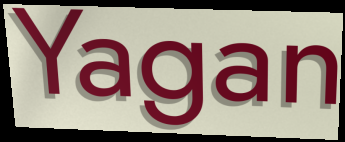
Yagan